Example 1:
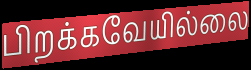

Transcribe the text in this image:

பிறக்கவேயில்லை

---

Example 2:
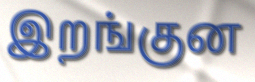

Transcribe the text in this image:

இறங்குன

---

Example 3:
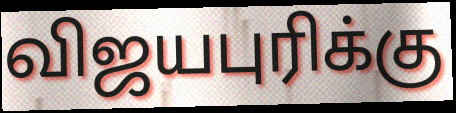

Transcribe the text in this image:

விஜயபுரிக்கு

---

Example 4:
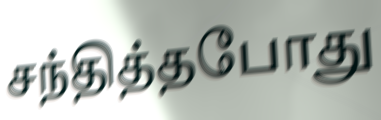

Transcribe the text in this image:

சந்தித்தபோது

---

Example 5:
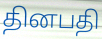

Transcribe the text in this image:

தினபதி